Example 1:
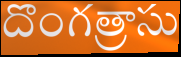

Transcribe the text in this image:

దొంగత్రాసు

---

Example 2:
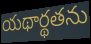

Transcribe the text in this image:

యథార్థతను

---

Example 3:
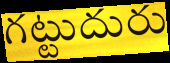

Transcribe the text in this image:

గట్టుదురు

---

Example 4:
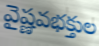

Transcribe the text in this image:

వైష్ణవభక్తుల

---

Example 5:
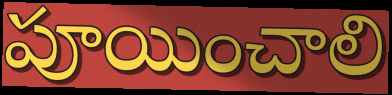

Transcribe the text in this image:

పూయించాలి